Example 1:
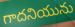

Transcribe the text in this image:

గాదనియును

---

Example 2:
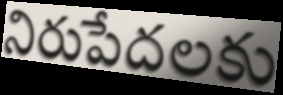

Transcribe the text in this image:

నిరుపేదలకు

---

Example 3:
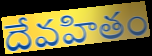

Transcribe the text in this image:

దేవహితం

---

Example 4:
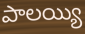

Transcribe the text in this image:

పాలయ్యి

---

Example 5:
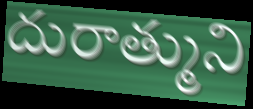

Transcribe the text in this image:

దురాత్ముని